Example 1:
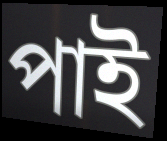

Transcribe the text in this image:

পাই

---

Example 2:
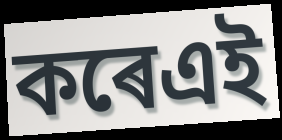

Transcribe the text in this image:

কৰেএই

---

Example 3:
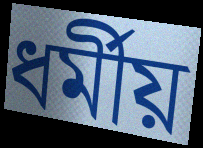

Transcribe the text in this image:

ধৰ্মীয়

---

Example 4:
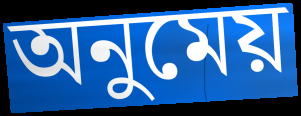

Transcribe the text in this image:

অনুমেয়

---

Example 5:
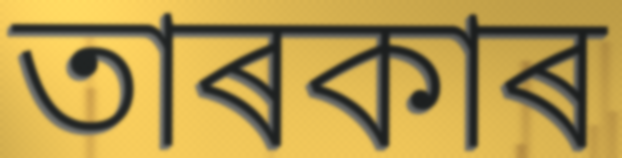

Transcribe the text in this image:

তাৰকাৰ